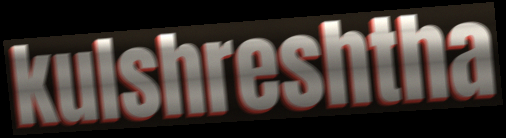
kulshreshtha